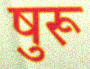
षुरू